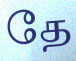
தே